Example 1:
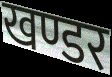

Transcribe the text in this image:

खण्डर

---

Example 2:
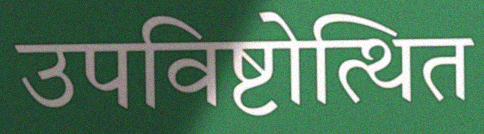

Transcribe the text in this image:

उपविष्टोत्थित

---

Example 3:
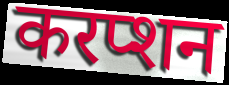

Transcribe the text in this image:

करप्शन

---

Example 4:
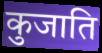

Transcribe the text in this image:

कुजाति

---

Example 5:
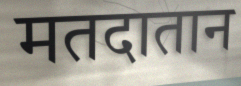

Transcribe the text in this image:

मतदातान